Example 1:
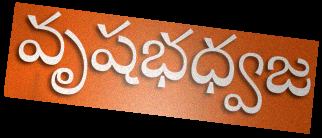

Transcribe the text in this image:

వృషభధ్వజ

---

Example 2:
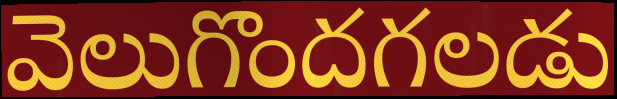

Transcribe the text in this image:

వెలుగొందగలడు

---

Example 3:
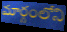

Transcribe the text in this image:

మార్గంలోని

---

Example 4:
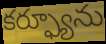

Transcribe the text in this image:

కర్ఫ్యూను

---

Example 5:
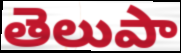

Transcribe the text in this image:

తెలుపా